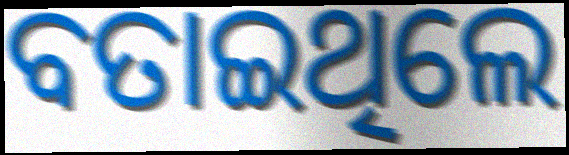
ବତାଇଥିଲେ